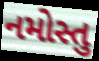
નમોસ્તુ